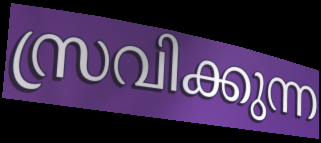
സ്രവിക്കുന്ന